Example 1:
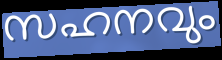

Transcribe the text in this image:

സഹനവും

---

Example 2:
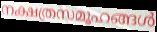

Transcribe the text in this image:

നക്ഷത്രസമൂഹങ്ങൾ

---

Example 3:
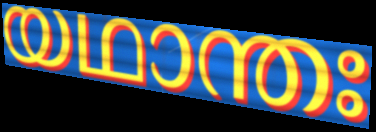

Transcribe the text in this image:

യഥാന്തഃ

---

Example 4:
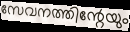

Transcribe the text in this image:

സേവനത്തിന്റേയും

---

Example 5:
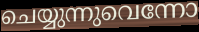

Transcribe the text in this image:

ചെയ്യുന്നുവെന്നോ